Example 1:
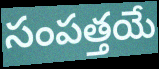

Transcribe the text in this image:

సంపత్తయే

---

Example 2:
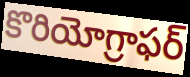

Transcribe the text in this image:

కొరియోగ్రాఫర్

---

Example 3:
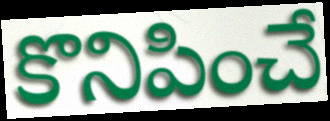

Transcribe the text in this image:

కొనిపించే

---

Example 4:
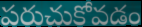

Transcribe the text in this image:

పరుచుకోవడం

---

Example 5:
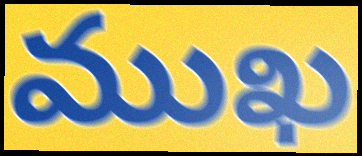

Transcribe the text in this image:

ముఖ